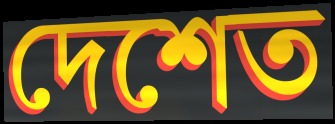
দেশেত